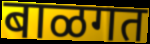
बाळगत